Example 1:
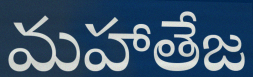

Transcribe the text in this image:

మహాతేజ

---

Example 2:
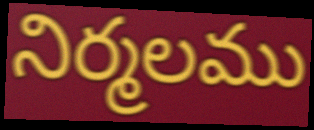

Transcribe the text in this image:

నిర్మలము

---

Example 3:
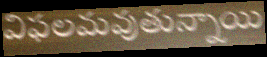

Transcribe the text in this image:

విఫలమవుతున్నాయి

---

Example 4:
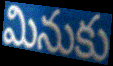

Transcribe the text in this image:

మినుకు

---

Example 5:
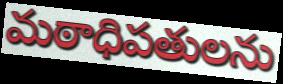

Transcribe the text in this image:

మఠాధిపతులను